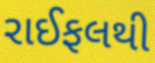
રાઈફલથી